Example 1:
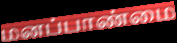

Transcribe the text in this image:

மனப்பாண்மை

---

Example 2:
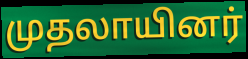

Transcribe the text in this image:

முதலாயினர்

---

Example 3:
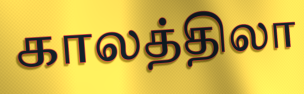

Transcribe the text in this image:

காலத்திலா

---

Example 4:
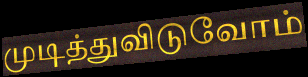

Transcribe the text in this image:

முடித்துவிடுவோம்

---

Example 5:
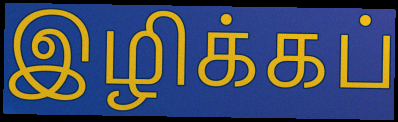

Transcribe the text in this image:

இழிக்கப்